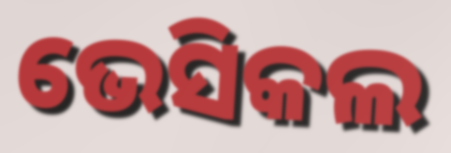
ଭେସିକଲ